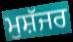
ਮੁਸ਼ੱਜਰ